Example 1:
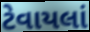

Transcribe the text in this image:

ટેવાયલાં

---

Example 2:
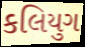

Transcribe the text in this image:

કલિયુગ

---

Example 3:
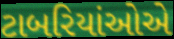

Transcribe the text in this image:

ટાબરિયાંઓએ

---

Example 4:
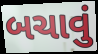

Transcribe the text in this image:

બચાવું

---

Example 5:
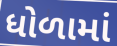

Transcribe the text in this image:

ધોળામાં